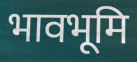
भावभूमि